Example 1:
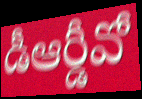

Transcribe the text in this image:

డీఆర్డీవో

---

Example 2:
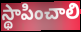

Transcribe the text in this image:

స్థాపించాలి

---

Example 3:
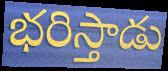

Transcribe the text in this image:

భరిస్తాడు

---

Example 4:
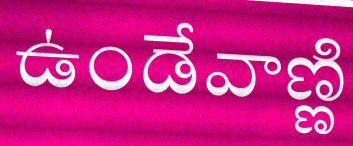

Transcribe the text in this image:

ఉండేవాణ్ణి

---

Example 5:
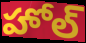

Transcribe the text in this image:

హోల్